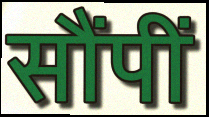
सौंपीं